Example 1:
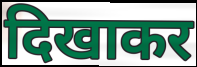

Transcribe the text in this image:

दिखाकर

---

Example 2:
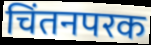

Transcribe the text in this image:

चिंतनपरक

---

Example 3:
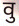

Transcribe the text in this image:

वु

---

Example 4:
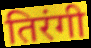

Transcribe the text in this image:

तिरंगी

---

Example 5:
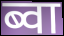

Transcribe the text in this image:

ब्वा